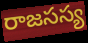
రాజసస్య